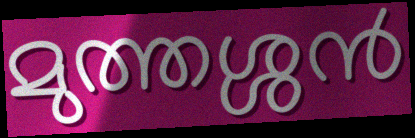
മുത്തശ്ശൻ